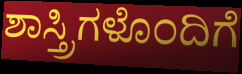
ಶಾಸ್ತ್ರಿಗಳೊಂದಿಗೆ